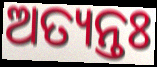
ଅତ୍ୟନ୍ତଃ